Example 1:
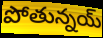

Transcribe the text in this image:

పోతున్నయ్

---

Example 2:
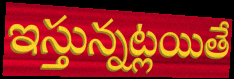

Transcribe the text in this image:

ఇస్తున్నట్లయితే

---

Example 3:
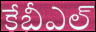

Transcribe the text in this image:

కేబీఎల్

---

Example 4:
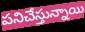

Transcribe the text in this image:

పనిచేస్తున్నాయి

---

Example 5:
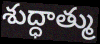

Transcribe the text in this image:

శుద్ధాత్ము